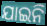
ଯାଇନି